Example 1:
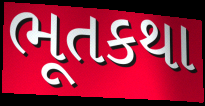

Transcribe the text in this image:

ભૂતકથા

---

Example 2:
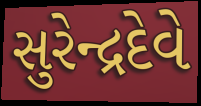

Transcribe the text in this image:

સુરેન્દ્રદેવે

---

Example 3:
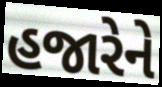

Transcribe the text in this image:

હજારેને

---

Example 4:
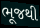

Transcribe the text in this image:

ભૂજથી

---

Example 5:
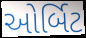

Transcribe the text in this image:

ઓર્બિટ